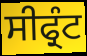
ਸੀਫ੍ਰੰਟ